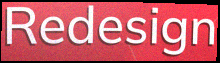
Redesign